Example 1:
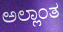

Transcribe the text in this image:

ಅಲ್ಲಾಂತ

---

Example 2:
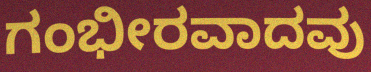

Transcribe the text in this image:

ಗಂಭೀರವಾದವು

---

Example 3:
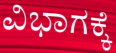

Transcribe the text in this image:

ವಿಭಾಗಕ್ಕೆ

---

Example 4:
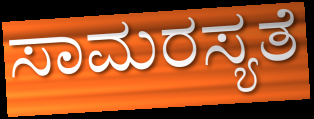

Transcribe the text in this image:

ಸಾಮರಸ್ಯತೆ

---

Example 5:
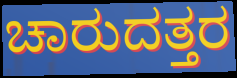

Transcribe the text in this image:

ಚಾರುದತ್ತರ